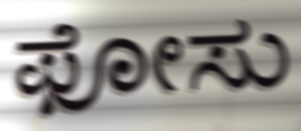
ಫೋಸು